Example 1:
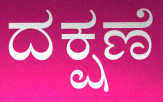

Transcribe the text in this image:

ದಕ್ಷಣೆ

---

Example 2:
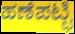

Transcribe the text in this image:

ಹಣೆಪಟ್ಟಿ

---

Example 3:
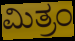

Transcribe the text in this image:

ಮಿತ್ರಂ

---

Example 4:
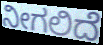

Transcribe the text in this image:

ನೀಗಲಿದೆ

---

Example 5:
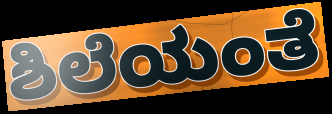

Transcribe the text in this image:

ಶಿಲೆಯಂತೆ